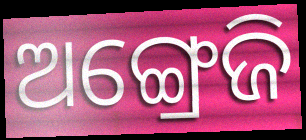
ଅଙ୍ଗ୍ରେଜି